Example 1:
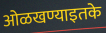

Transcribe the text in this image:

ओळखण्याइतके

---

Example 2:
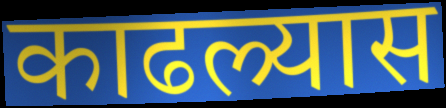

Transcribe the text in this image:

काढल्यास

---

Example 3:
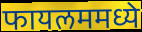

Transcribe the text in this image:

फायलममध्ये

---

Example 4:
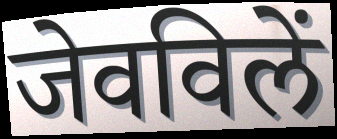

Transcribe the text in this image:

जेवविलें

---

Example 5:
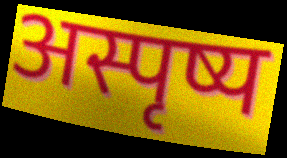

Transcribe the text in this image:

अस्पृष्य